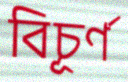
বিচূর্ণ